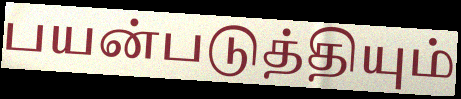
பயன்படுத்தியும்